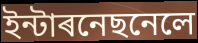
ইন্টাৰনেছনেলে